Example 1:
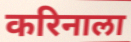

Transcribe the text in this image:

करिनाला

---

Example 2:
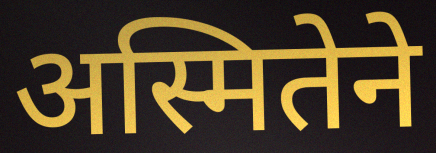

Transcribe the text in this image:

अस्मितेने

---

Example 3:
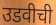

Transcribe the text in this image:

उडवीची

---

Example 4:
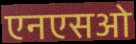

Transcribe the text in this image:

एनएसओ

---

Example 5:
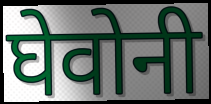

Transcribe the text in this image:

घेवोनी